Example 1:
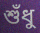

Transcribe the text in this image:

শুঁধু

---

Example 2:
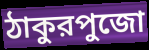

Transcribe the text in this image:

ঠাকুরপুজো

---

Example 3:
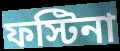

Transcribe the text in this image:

ফস্টিনা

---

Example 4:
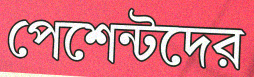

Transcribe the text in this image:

পেশেন্টদের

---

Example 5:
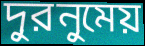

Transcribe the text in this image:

দুরনুমেয়